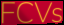
FCVs